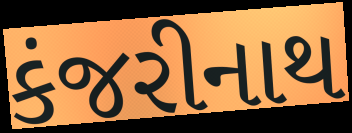
કંજરીનાથ